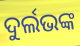
ଦୁର୍ଲଭଙ୍କ